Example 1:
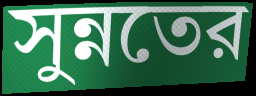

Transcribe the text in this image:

সুন্নতের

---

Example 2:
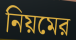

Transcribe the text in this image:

নিয়মের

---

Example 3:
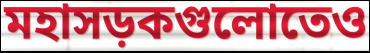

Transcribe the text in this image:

মহাসড়কগুলোতেও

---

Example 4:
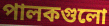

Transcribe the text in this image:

পালকগুলো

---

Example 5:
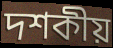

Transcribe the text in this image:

দশকীয়